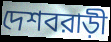
দেশবরাড়ী